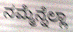
ನಮ್ಮೆನ್ನೆಲ್ಲಾ